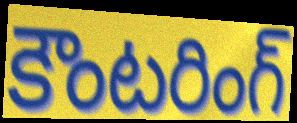
కౌంటరింగ్